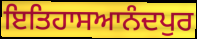
ਇਤਿਹਾਸਆਨੰਦਪੁਰ